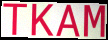
TKAM